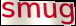
smug